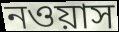
নওয়াস